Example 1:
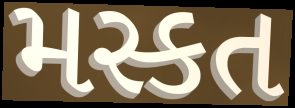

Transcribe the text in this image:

મસ્કત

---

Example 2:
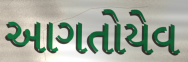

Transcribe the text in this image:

આગતોયેવ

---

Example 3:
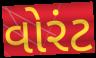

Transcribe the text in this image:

વોરંટ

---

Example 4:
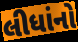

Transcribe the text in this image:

લીધાંનો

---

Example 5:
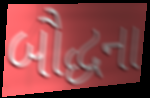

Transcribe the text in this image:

બૌદ્ધના